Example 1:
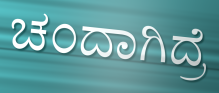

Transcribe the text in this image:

ಚಂದಾಗಿದ್ರೆ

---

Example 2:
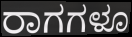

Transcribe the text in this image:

ರಾಗಗಳೂ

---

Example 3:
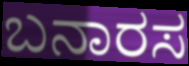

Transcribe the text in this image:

ಬನಾರಸ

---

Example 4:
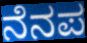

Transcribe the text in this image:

ನೆನಪ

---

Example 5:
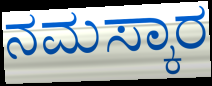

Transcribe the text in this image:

ನಮಸ್ಕಾರ